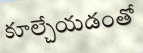
కూల్చేయడంతో